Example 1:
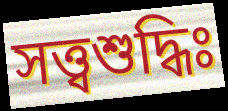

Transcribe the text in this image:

সত্ত্বশুদ্ধিঃ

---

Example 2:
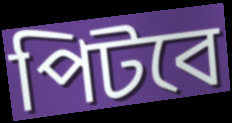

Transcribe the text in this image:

পিটবে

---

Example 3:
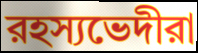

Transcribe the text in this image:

রহস্যভেদীরা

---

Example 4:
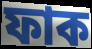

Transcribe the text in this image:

ফাক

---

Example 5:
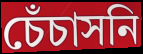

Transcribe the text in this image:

চেঁচাসনি